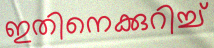
ഇതിനെക്കുറിച്ച്